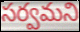
సర్వమని